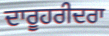
ਦਾਰੂਹਰੀਦਰਾ